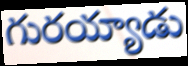
గురయ్యాడు